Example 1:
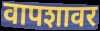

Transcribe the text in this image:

वापशावर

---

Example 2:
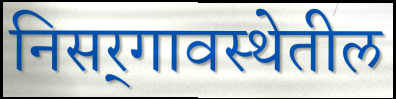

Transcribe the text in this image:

निसर्गावस्थेतील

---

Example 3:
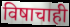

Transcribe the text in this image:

विषाचाही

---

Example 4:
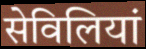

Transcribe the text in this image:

सेविलियां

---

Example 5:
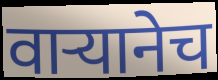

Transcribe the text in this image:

वाऱ्यानेच